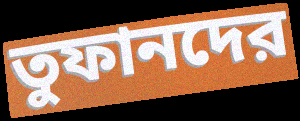
তুফানদের